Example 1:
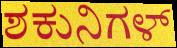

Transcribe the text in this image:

ಶಕುನಿಗಳ್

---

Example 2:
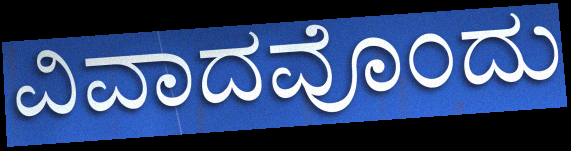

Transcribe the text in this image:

ವಿವಾದವೊಂದು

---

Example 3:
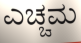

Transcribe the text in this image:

ಎಚ್ಚಮ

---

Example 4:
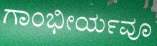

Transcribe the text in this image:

ಗಾಂಭೀರ್ಯವೂ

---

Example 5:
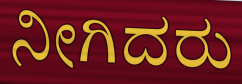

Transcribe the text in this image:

ನೀಗಿದರು